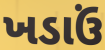
ખડાઉં